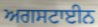
ਅਗਸਟਾਈਨ